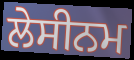
ਲੇਸੀਨਮ